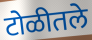
टोळीतले